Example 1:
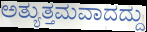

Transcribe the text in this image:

ಅತ್ಯುತ್ತಮವಾದದ್ದು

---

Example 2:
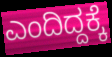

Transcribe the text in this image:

ಎಂದಿದ್ದಕ್ಕೆ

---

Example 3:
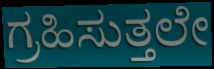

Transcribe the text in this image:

ಗ್ರಹಿಸುತ್ತಲೇ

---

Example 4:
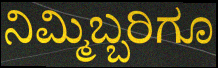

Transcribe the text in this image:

ನಿಮ್ಮಿಬ್ಬರಿಗೂ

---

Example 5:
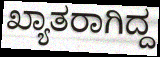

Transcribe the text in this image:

ಖ್ಯಾತರಾಗಿದ್ದ